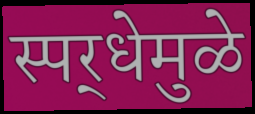
स्पर्धेमुळे